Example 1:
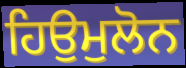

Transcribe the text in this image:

ਹਿਉਮੁਲੋਨ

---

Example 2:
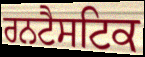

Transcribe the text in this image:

ਰਨਟੈਸਟਿਕ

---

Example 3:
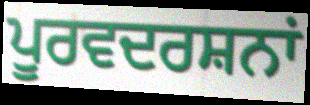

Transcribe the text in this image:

ਪੂਰਵਦਰਸ਼ਨਾਂ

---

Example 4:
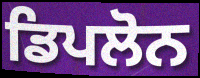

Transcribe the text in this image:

ਡਿਪਲੋਨ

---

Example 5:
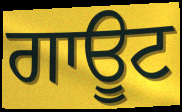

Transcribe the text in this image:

ਗਾਊਟ